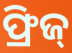
ଫ୍ରିଜ୍